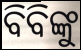
ବିବିଙ୍କୁ